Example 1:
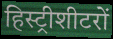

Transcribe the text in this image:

हिस्ट्रीशीटरों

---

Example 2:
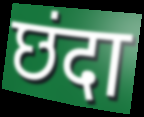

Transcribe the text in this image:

छंदा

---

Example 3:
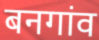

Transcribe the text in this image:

बनगांव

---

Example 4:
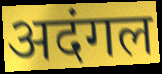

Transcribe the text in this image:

अदंगल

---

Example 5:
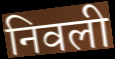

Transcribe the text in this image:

निवली